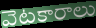
వెటకారాలు